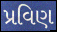
પ્રવિણ